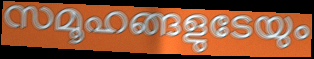
സമൂഹങ്ങളുടേയും